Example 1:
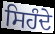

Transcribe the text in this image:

ਸਿਹੰਦੇ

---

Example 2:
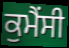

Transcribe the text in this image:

ਕੁਮੈਂਸੀ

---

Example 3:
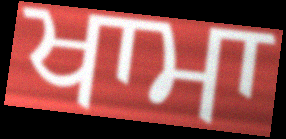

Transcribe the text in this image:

ਖਾਮਾ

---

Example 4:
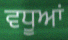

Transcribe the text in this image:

ਵਧੂਆਂ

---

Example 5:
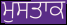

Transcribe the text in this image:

ਮੁਸਤਾਕ